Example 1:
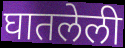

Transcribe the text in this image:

घातलेली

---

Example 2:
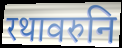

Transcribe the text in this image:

रथावरुनि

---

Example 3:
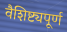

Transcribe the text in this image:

वैशिष्ट्यपूर्ण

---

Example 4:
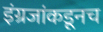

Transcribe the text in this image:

इंग्रजांकडूनच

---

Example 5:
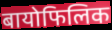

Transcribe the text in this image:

बायोफिलिक